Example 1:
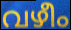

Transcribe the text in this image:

വഴീം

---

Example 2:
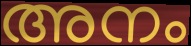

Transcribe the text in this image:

അനം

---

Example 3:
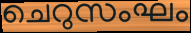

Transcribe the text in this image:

ചെറുസംഘം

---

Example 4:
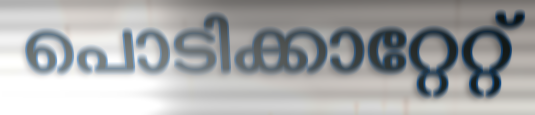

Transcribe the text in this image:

പൊടിക്കാറ്റേറ്റ്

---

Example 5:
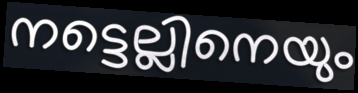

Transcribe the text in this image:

നട്ടെല്ലിനെയും